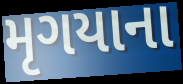
મૃગયાના